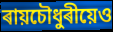
ৰায়চৌধুৰীয়েও